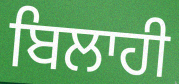
ਬਿਲਾਹੀ